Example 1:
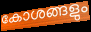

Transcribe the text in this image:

കോശങ്ങളും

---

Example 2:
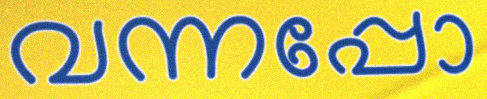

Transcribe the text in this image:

വന്നപ്പോ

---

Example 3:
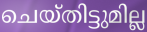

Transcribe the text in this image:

ചെയ്തിട്ടുമില്ല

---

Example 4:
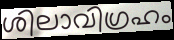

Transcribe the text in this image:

ശിലാവിഗ്രഹം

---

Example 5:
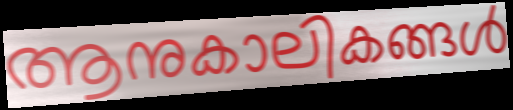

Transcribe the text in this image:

ആനുകാലികങ്ങൾ